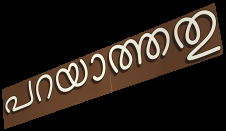
പറയാത്തതു